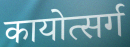
कायोत्सर्ग